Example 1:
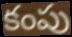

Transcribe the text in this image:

కంపు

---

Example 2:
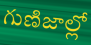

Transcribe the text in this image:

గుణిజాల్లో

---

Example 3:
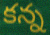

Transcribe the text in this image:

కన్న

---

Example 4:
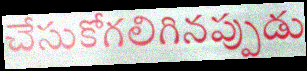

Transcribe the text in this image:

చేసుకోగలిగినప్పుడు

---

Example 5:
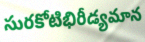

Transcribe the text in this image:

సురకోటిభిరీడ్యమాన